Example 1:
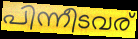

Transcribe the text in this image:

പിന്നീടവര്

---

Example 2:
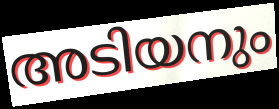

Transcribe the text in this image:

അടിയനും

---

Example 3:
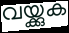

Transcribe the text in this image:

വയ്ക്കുക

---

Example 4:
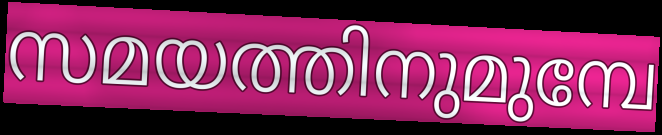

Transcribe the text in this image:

സമയത്തിനുമുമ്പേ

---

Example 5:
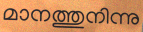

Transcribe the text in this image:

മാനത്തുനിന്നു